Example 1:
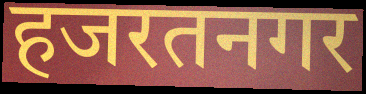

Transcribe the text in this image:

हजरतनगर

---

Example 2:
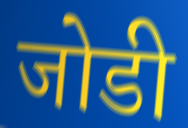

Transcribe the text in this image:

जोडी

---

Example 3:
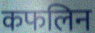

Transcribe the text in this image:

कफलिन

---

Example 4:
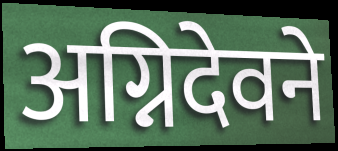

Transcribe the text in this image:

अग्निदेवने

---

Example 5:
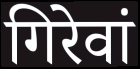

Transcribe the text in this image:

गिरेवां